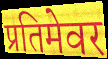
प्रतिमेवर